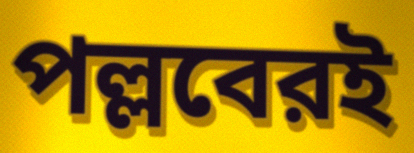
পল্লবেরই